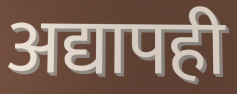
अद्यापही